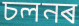
চলনৰ